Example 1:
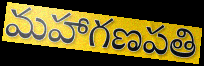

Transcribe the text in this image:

మహాగణపతి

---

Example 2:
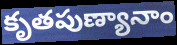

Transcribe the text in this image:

కృతపుణ్యానాం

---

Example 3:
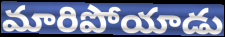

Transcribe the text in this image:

మారిపోయాడు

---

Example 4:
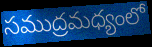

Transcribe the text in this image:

సముద్రమధ్యంలో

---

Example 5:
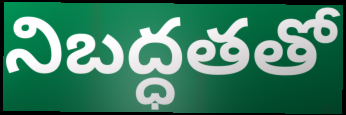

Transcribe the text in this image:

నిబద్ధతతో